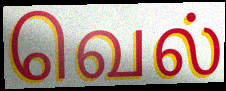
வெல்